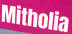
Mitholia